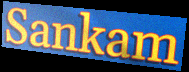
Sankam